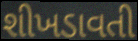
શીખડાવતી